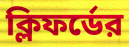
ক্লিফর্ডের